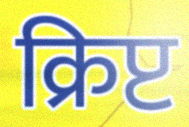
क्रिप्ट